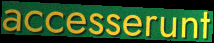
accesserunt